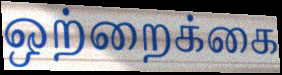
ஒற்றைக்கை